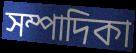
সম্পাদিকা